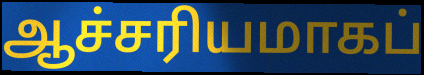
ஆச்சரியமாகப்